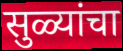
सुळ्यांचा